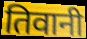
तिवानी